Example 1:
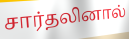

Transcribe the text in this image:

சார்தலினால்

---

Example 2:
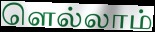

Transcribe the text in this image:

ளெல்லாம்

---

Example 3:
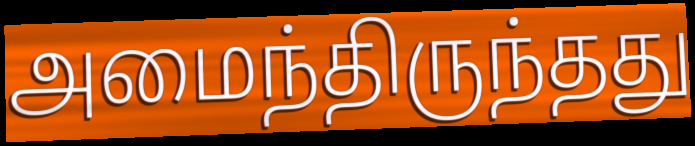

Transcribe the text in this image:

அமைந்திருந்தது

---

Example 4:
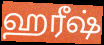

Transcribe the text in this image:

ஹரீஷ்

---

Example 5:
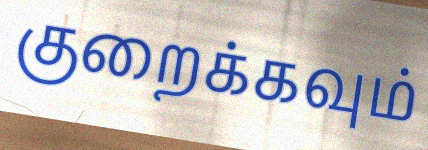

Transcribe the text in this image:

குறைக்கவும்